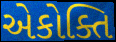
એકોક્તિ